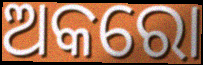
ଅକରୋ